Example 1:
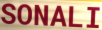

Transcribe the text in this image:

SONALI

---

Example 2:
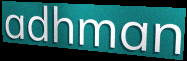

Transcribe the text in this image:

adhman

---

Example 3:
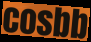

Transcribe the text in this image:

cosbb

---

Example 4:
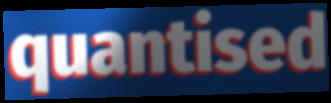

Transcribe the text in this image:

quantised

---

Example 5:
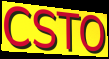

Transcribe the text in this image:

CSTO